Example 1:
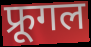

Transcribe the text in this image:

फ्रूगल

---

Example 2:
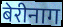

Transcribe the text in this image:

बेरीनाग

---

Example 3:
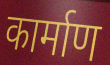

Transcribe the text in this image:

कार्माण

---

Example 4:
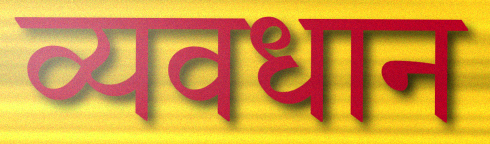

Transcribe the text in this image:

व्यवधान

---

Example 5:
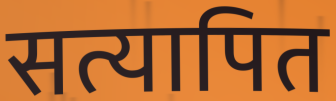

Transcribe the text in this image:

सत्यापित